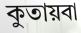
কুতায়বা